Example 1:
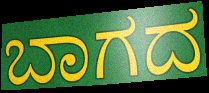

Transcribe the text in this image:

ಬಾಗದ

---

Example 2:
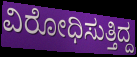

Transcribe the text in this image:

ವಿರೋಧಿಸುತ್ತಿದ್ದ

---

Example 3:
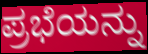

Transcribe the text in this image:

ಪ್ರಭೆಯನ್ನು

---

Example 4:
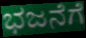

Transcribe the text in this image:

ಭಜನೆಗೆ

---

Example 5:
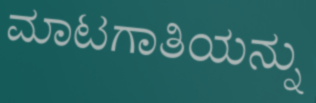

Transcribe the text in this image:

ಮಾಟಗಾತಿಯನ್ನು